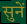
सुनें